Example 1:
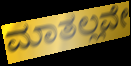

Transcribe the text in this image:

ಮಾತಲ್ಲವೇ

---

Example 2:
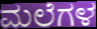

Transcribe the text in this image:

ಮಲೆಗಳ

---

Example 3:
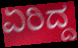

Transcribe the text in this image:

ಏರಿದ್ದ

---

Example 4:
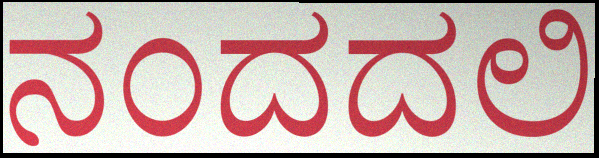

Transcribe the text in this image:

ನಂದದಲಿ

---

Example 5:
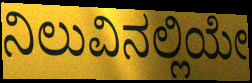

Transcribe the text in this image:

ನಿಲುವಿನಲ್ಲಿಯೇ